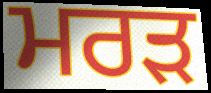
ਮਰੜ